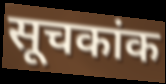
सूचकांक